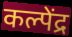
कल्पेंद्र